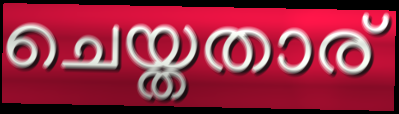
ചെയ്തതാര്